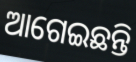
ଆଗେଇଛନ୍ତି